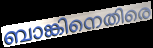
ബാങ്കിനെതിരെ